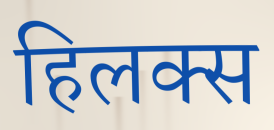
हिलक्स